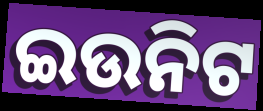
ଇଉନିଟ